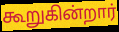
கூறுகின்றார்